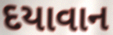
દયાવાન